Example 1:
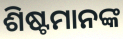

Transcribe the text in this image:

ଶିଷ୍ଟମାନଙ୍କ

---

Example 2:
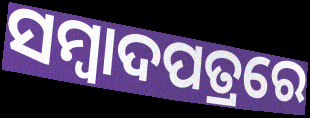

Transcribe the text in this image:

ସମ୍ୱାଦପତ୍ରରେ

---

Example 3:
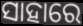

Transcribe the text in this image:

ସାହାରେ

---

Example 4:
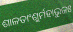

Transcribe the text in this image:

ଶାଳତାଂଶୁର୍ମହାଭୁଜଃ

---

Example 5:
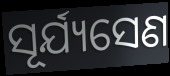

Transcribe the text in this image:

ସୂର୍ଯ୍ୟସେଣ